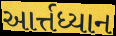
આર્ત્તધ્યાન